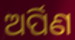
ଅର୍ପିଣ